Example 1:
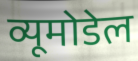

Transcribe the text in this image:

व्यूमोडेल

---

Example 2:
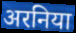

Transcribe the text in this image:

अरनिया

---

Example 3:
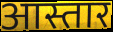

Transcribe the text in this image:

आस्तार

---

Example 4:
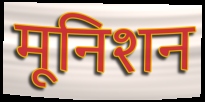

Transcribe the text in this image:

मूनिशन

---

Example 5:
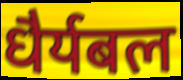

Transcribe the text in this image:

धैर्यबल